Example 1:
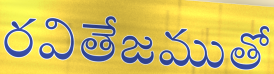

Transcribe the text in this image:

రవితేజముతో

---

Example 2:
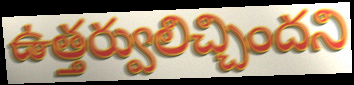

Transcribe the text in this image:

ఉత్తర్వులిచ్చిందని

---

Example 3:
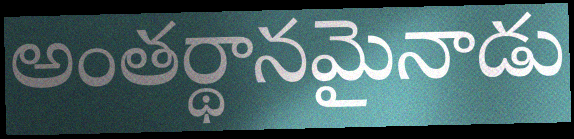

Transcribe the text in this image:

అంతర్థానమైనాడు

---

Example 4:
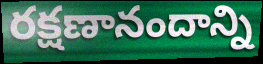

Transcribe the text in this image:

రక్షణానందాన్ని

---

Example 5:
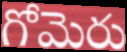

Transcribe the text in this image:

గోమెరు